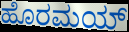
ಹೊರಮಯ್